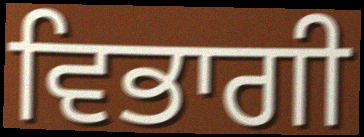
ਵਿਭਾਗੀ